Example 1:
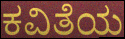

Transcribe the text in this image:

ಕವಿತೆಯ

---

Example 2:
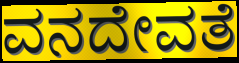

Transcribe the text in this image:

ವನದೇವತೆ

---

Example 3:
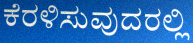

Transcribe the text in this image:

ಕೆರಳಿಸುವುದರಲ್ಲಿ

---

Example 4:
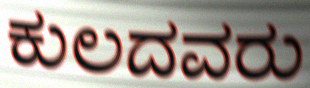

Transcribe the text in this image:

ಕುಲದವರು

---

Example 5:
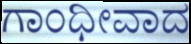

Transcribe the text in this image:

ಗಾಂಧೀವಾದ